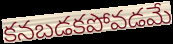
కనబడకపోవడమే